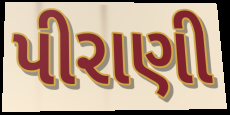
પીરાણી